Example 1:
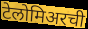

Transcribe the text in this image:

टेलोमिअरची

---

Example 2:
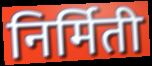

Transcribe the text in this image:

निर्मिती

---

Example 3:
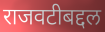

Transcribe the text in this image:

राजवटीबद्दल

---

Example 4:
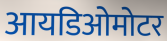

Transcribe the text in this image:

आयडिओमोटर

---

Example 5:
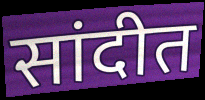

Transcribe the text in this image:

सांदीत